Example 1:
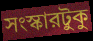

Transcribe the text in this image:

সংস্কারটুকু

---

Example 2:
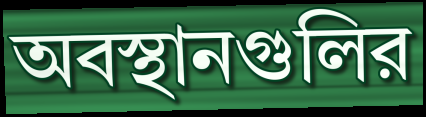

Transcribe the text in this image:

অবস্থানগুলির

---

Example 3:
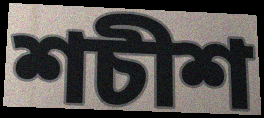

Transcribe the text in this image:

শচীশ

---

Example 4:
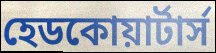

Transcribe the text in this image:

হেডকোয়ার্টার্স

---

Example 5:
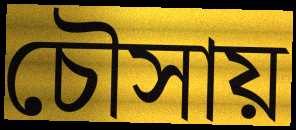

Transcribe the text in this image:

চৌসায়